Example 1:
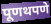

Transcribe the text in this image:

पूणथपणे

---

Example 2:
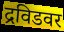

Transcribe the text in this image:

द्रविडवर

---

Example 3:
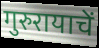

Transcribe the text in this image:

गुरुरायाचें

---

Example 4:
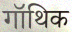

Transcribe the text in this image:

गॉथिक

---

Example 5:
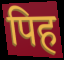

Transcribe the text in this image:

पिह